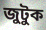
জুটুক